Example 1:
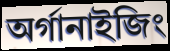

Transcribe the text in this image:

অর্গানাইজিং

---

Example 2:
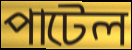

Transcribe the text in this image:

পাটেল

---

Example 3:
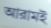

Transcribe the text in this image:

আরামই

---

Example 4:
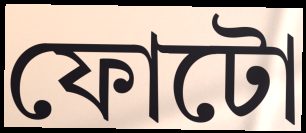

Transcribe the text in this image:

ফোটো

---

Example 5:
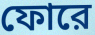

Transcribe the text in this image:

ফোরে